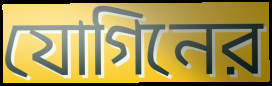
যোগিনের